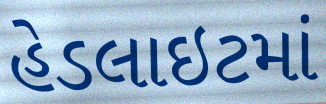
હેડલાઇટમાં